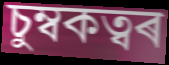
চুম্বকত্বৰ